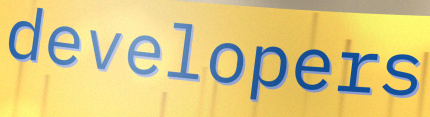
developers